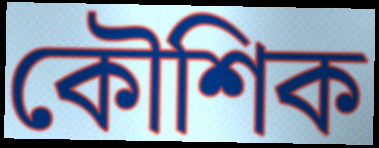
কৌশিক